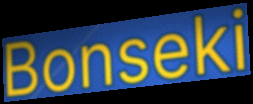
Bonseki